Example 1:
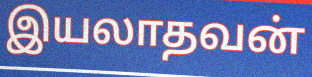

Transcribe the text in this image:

இயலாதவன்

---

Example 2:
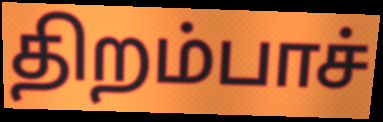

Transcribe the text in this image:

திறம்பாச்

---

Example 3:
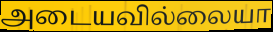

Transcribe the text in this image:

அடையவில்லையா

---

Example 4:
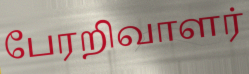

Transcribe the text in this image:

பேரறிவாளர்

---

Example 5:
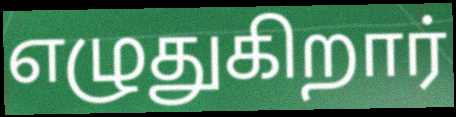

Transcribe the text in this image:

எழுதுகிறார்